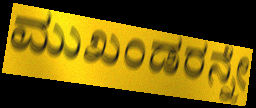
ಮುಖಂಡರನ್ನೇ